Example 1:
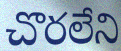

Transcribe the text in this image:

చొరలేని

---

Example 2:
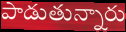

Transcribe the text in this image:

పాడుతున్నారు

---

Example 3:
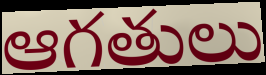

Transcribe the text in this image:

ఆగతులు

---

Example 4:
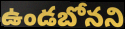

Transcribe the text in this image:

ఉండబోనని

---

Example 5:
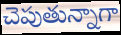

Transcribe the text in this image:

చెపుతున్నాగా